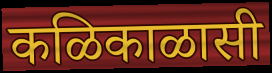
कळिकाळासी